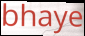
bhaye